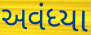
અવંધ્યા